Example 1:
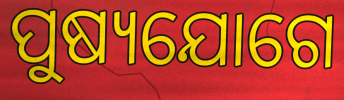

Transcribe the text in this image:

ପୁଷ୍ୟଯୋଗେ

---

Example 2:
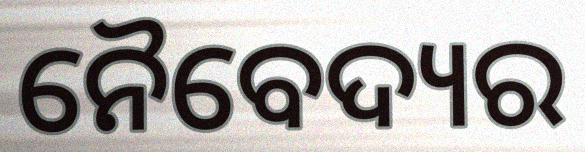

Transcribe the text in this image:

ନୈବେଦ୍ୟର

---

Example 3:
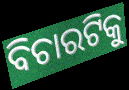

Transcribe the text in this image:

ବିଚାରଟିକୁ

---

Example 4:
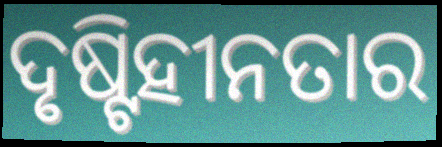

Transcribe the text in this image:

ଦୃଷ୍ଟିହୀନତାର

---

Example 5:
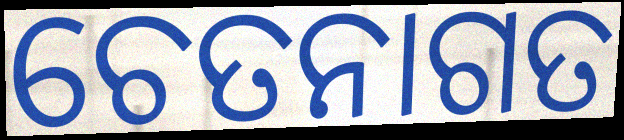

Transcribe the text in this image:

ଚେତନାଗତ